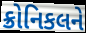
ક્રોનિકલને